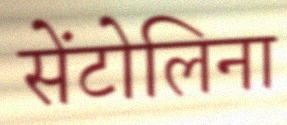
सेंटोलिना